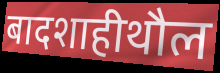
बादशाहीथौल